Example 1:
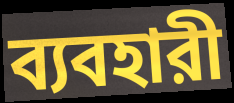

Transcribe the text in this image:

ব্যবহারী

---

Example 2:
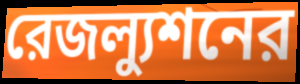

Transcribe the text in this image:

রেজল্যুশনের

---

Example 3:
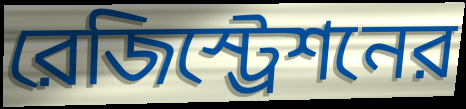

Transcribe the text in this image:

রেজিস্ট্রেশনের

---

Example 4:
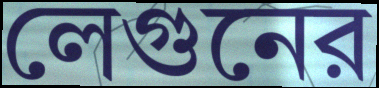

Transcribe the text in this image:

লেগুনের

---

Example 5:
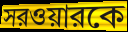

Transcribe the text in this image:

সরওয়ারকে